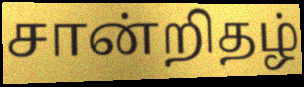
சான்றிதழ்